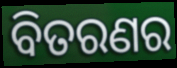
ବିତରଣର